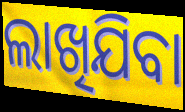
ଲାଖିଯିବା